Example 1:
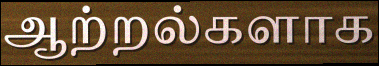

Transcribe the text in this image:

ஆற்றல்களாக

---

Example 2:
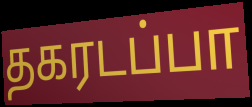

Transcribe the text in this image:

தகரடப்பா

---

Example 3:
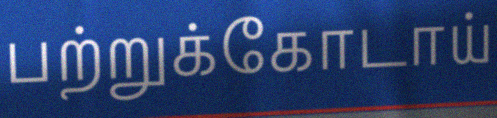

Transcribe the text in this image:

பற்றுக்கோடாய்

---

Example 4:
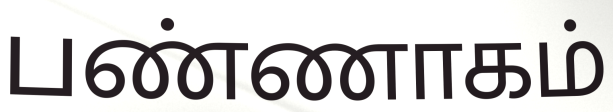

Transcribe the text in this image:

பண்ணாகம்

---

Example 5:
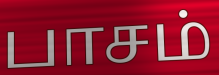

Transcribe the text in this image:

பாசம்